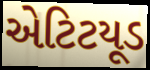
એટિટયૂડ